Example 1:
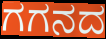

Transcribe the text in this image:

ಗಗನದ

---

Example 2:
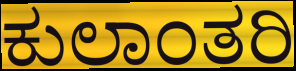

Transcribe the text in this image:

ಕುಲಾಂತರಿ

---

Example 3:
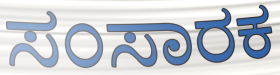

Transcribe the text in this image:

ಸಂಸಾರಕ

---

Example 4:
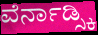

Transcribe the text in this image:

ವೆರ್ನಾಡ್ಸ್ಕಿ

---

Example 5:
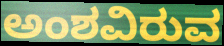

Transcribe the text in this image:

ಅಂಶವಿರುವ